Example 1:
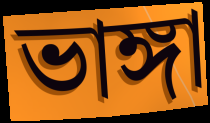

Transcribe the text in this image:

ভাঙ্গা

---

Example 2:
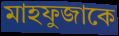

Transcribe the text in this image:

মাহফুজাকে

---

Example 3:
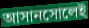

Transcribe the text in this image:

আসানসোলেই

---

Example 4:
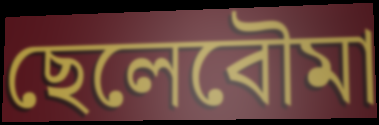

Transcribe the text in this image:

ছেলেবৌমা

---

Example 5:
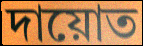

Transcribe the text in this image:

দায়োত